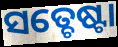
ସତ୍ଚେଷ୍ଟା